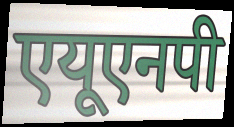
एयूएनपी